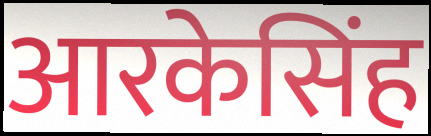
आरकेसिंह